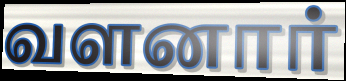
வளனார்